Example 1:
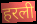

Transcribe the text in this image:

हरली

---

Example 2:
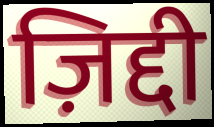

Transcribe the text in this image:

ज़िद्दी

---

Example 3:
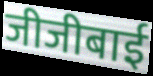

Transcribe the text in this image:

जीजीबाई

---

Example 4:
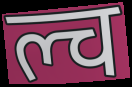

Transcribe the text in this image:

ल्च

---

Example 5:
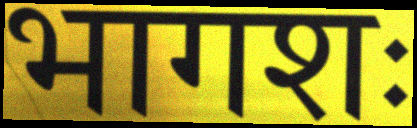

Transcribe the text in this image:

भागशः